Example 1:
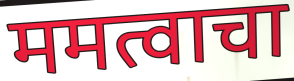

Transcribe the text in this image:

ममत्वाचा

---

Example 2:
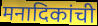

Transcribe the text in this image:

मनादिकांची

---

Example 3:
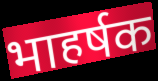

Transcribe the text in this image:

भाहर्षक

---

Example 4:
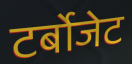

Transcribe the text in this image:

टर्बोजेट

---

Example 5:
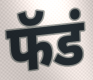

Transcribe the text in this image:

फॅडं